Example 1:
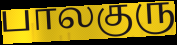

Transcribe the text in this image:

பாலகுரு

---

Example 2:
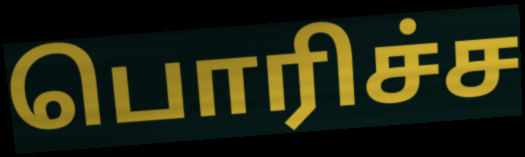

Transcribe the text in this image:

பொரிச்ச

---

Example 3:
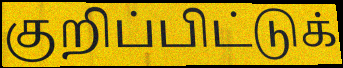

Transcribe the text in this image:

குறிப்பிட்டுக்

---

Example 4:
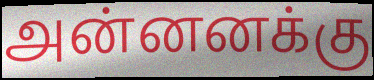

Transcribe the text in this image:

அன்னனக்கு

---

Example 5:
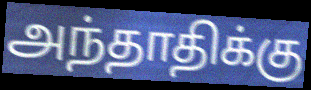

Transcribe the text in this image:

அந்தாதிக்கு